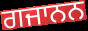
ਗਜਾਨਨ